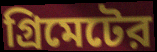
গ্রিমেটের